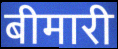
बीमारी